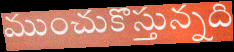
ముంచుకొస్తున్నది